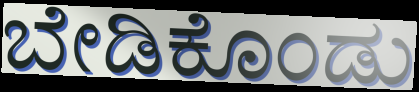
ಬೇಡಿಕೊಂಡು